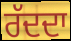
ਰੱਦਦਾ